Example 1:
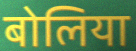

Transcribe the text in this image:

बोलिया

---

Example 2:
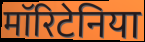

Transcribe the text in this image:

मॉरिटेनिया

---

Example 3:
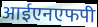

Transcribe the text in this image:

आईएनएफपी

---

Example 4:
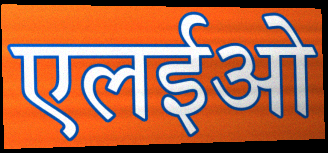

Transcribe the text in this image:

एलईओ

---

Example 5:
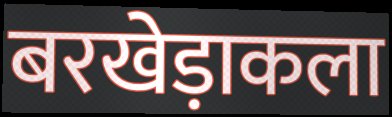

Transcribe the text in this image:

बरखेड़ाकला